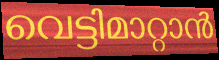
വെട്ടിമാറ്റാൻ